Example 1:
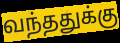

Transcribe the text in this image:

வந்ததுக்கு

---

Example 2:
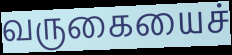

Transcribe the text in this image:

வருகையைச்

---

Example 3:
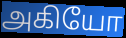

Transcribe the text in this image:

அகியோ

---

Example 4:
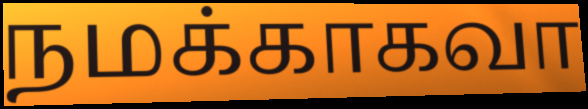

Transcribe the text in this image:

நமக்காகவா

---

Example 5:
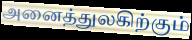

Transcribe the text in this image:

அனைத்துலகிற்கும்